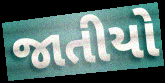
જાતીયો